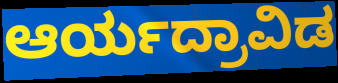
ಆರ್ಯದ್ರಾವಿಡ